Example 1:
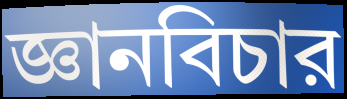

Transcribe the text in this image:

জ্ঞানবিচার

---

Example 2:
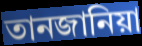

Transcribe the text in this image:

তানজানিয়া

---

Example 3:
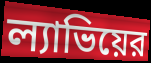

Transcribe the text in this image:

ল্যাভিয়ের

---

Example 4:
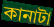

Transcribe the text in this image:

কানাটা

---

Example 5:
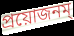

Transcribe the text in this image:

প্রয়োজনম্